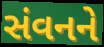
સંવનને